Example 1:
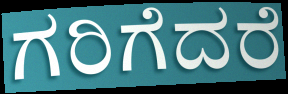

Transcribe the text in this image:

ಗರಿಗೆದರೆ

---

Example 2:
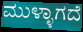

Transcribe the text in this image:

ಮುಳ್ಳಾಗದೆ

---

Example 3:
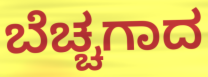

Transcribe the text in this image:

ಬೆಚ್ಚಗಾದ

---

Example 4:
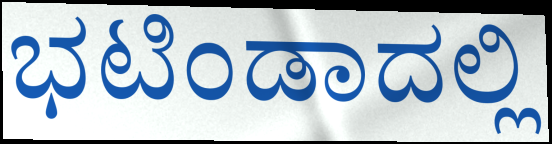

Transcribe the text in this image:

ಭಟಿಂಡಾದಲ್ಲಿ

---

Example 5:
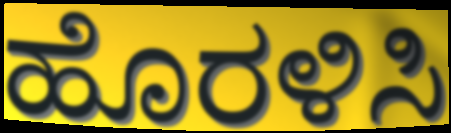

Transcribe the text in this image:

ಹೊರಳಿಸಿ